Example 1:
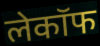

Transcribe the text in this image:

लेकॉफ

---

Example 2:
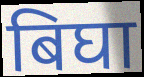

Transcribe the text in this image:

बिघा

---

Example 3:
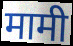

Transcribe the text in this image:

मामी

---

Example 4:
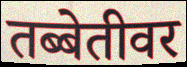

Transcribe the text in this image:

तब्बेतीवर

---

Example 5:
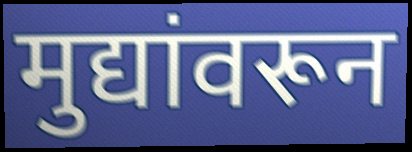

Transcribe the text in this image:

मुद्यांवरून